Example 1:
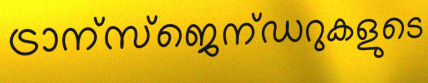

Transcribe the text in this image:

ട്രാന്സ്ജെന്ഡറുകളുടെ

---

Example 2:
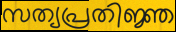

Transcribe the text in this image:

സത്യപ്രതിജ്ഞ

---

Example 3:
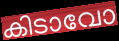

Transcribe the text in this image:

കിടാവോ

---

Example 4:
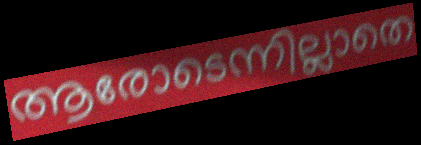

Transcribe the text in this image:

ആരോടെന്നില്ലാതെ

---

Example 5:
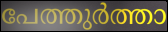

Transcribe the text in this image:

പേത്തുർത്താ